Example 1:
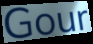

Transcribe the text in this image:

Gour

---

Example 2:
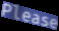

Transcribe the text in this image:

Please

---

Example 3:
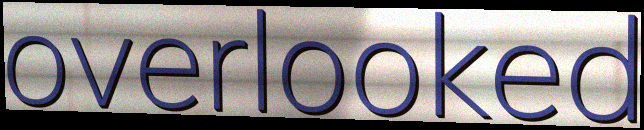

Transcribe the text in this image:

overlooked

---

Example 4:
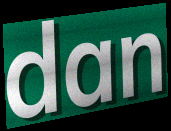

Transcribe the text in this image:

dan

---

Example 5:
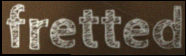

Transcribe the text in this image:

fretted